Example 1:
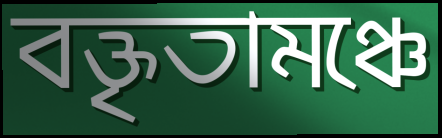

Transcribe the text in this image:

বক্তৃতামঞ্চে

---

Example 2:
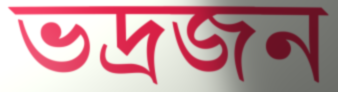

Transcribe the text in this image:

ভদ্রজন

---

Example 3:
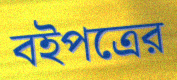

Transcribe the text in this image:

বইপত্রের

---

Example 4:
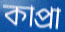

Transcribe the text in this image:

কাপ্রা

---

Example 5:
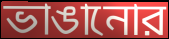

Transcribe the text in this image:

ভাঙানোর